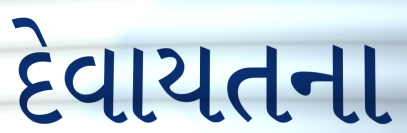
દેવાયતના